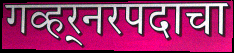
गव्हर्नरपदाचा